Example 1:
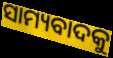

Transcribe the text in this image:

ସାମ୍ୟବାଦକୁ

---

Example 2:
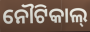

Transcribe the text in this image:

ନୌଟିକାଲ୍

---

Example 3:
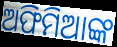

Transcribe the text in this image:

ଅଫିମିଆଙ୍କ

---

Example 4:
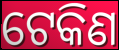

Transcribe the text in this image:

ଟେକିଣ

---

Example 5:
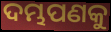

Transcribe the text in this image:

ଦମ୍ଭପଣକୁ